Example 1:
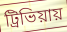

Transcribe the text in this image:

ট্রিভিয়ায়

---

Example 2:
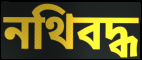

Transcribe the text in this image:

নথিবদ্ধ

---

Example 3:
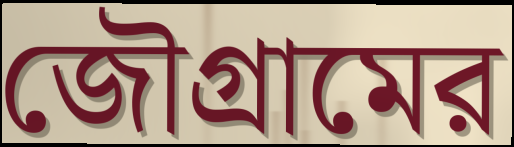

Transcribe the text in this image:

জৌগ্রামের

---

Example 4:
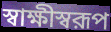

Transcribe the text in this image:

স্বাক্ষীস্বরূপ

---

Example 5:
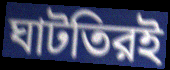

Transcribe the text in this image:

ঘাটতিরই